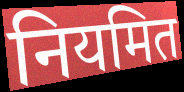
नियमित